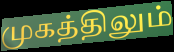
முகத்திலும்